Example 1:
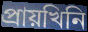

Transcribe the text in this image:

প্ৰায়খিনি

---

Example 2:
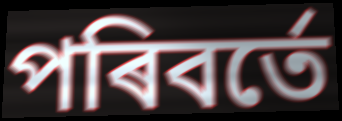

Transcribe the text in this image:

পৰিবৰ্তে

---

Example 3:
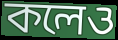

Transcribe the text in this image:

কলেও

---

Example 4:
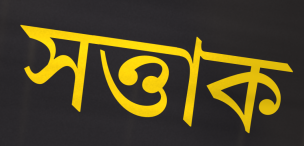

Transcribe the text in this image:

সত্তাক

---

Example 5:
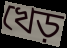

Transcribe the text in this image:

খেড়